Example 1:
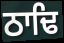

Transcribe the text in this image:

ਠਾਢਿ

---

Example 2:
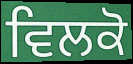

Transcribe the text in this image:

ਵਿਲਕੋ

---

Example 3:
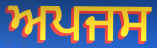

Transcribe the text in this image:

ਅਪਜਸ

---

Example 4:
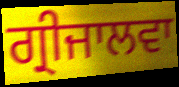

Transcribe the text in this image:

ਗ੍ਰੀਜਾਲਵਾ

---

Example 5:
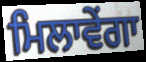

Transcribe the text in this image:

ਮਿਲਾਵੇਂਗਾ